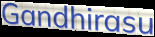
Gandhirasu